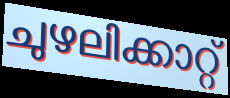
ചുഴലിക്കാറ്റ്